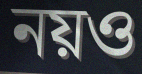
নয়ও